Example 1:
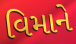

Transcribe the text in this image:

વિમાને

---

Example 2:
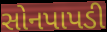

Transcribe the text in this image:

સોનપાપડી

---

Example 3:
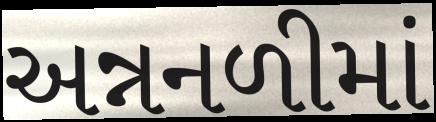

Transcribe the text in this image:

અન્નનળીમાં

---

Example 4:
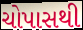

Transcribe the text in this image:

ચોપાસથી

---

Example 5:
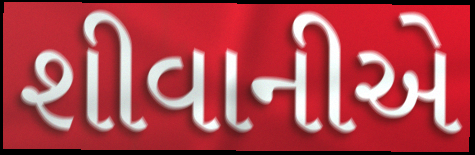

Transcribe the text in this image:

શીવાનીએ